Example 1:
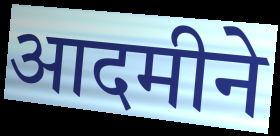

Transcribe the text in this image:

आदमीने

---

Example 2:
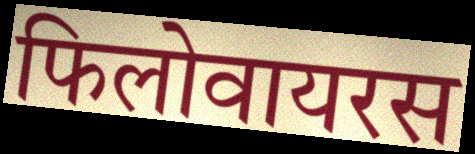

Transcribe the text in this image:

फिलोवायरस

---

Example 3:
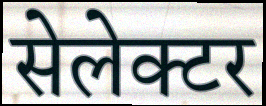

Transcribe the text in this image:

सेलेक्टर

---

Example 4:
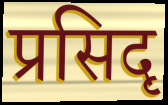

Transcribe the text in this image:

प्रसिदृ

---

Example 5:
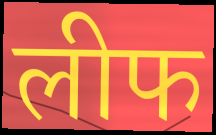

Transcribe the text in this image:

लीफ